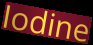
Iodine